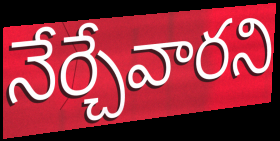
నేర్చేవారని